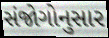
સંજોગોનુસાર